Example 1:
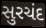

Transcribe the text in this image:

સુરચંદ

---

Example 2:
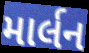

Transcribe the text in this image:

માર્લન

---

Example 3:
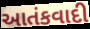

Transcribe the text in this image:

આતંકવાદી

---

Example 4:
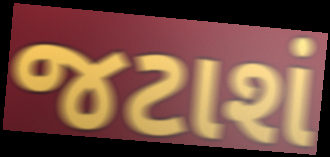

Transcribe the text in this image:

જટાશં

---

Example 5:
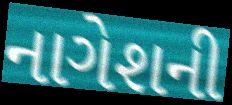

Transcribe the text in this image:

નાગેશની